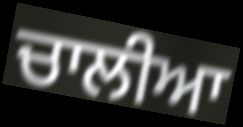
ਚਾਲੀਆ